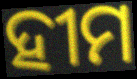
ହୀମ